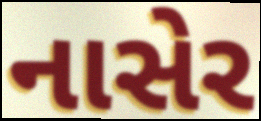
નાસેર